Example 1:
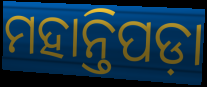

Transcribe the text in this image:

ମହାନ୍ତିପଡ଼ା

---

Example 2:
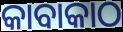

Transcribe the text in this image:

କାବାକାଠ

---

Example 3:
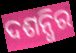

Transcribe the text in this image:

ଦଶନ୍ଧିର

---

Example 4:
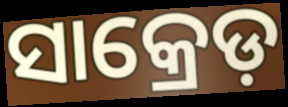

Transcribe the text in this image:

ସାକ୍ରେଡ଼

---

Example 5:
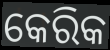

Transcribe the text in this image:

କେରିକ